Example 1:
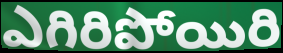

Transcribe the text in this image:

ఎగిరిపోయిరి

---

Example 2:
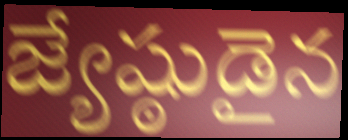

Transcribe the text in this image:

జ్యేష్ఠుడైన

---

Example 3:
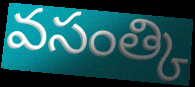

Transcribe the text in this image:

వసంత్కి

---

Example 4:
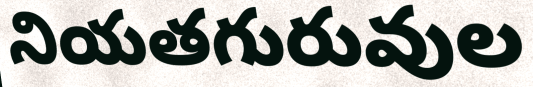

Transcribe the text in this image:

నియతగురువుల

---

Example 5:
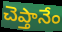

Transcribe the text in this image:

చెప్తానేం